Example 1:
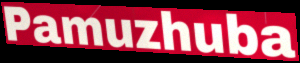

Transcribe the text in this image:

Pamuzhuba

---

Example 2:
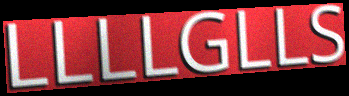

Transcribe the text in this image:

LLLLGLLS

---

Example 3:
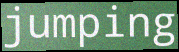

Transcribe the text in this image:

jumping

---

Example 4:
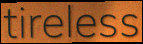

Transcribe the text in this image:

tireless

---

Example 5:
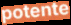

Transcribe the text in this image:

potente